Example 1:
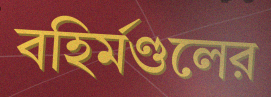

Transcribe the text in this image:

বহির্মণ্ডলের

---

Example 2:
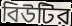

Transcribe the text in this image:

বিউটির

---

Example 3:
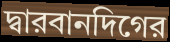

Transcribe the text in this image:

দ্বারবানদিগের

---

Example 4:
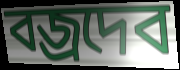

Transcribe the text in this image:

বজ্রদেব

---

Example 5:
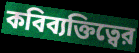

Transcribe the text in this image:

কবিব্যক্তিত্বের